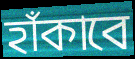
হাঁকাবে